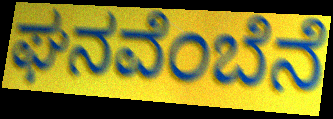
ಘನವೆಂಬೆನೆ